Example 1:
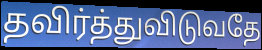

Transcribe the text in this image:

தவிர்த்துவிடுவதே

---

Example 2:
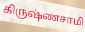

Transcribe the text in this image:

கிருஷ்ணசாமி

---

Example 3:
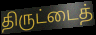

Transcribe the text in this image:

திருட்டைத்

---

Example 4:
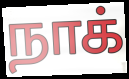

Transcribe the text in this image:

நாக்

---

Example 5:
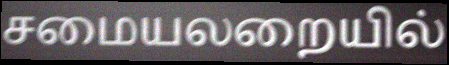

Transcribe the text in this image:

சமையலறையில்